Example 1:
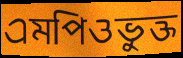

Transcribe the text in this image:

এমপিওভুক্ত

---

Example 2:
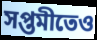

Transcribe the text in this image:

সপ্তমীতেও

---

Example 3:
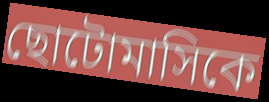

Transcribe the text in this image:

ছোটোমাসিকে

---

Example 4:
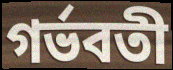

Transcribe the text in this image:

গর্ভবতী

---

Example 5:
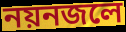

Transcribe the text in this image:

নয়নজলে